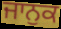
ਜਾਨੁਕ